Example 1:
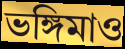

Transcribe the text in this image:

ভঙ্গিমাও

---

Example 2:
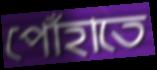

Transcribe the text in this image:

পোঁহাতে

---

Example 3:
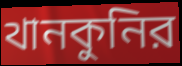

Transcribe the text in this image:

থানকুনির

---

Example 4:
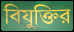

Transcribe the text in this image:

বিযুক্তির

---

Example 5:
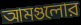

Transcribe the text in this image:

আমগুলোর